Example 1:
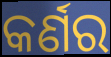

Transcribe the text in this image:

କର୍ଣର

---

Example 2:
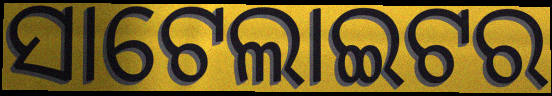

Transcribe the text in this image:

ସାଟେଲାଇଟର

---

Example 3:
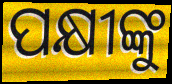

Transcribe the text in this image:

ପକ୍ଷୀଙ୍କୁ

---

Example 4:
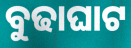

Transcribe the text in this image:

ବୁଢାଘାଟ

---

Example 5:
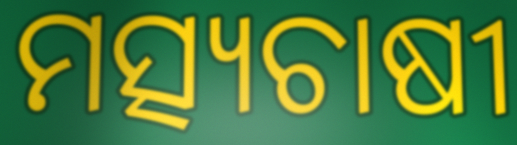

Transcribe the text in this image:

ମତ୍ସ୍ୟଚାଷୀ